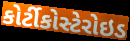
કોર્ટીકોસ્ટેરોઇડ